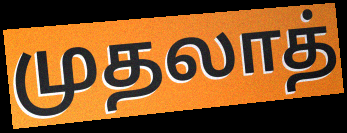
முதலாத்